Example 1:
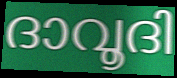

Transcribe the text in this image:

ദാവൂദി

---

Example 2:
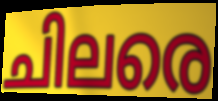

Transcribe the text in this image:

ചിലരെ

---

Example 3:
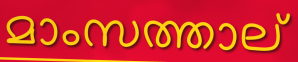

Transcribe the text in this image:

മാംസത്താല്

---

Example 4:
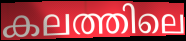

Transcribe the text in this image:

കലത്തിലെ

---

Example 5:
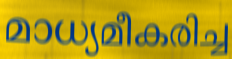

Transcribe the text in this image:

മാധ്യമീകരിച്ച